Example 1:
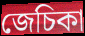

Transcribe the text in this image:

জেচিকা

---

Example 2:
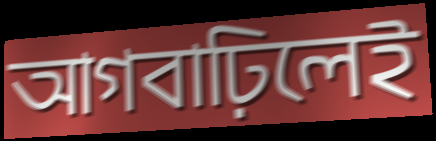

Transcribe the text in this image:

আগবাঢ়িলেই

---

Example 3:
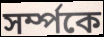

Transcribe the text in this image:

সৰ্ম্পকে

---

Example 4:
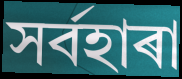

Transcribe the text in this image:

সৰ্বহাৰা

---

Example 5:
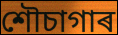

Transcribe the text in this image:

শৌচাগাৰ